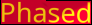
Phased